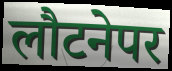
लौटनेपर